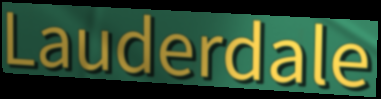
Lauderdale